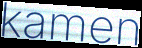
kamen